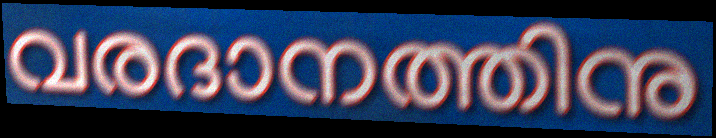
വരദാനത്തിനു